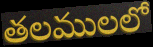
తలములలో